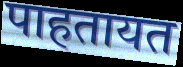
पाहतायत